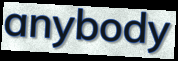
anybody